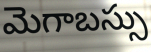
మెగాబస్సు